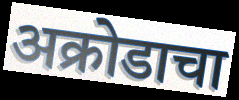
अक्रोडाचा